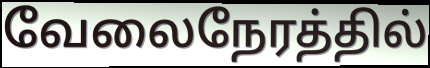
வேலைநேரத்தில்